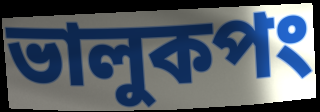
ভালুকপং